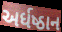
અર્ધષ્ઠાન